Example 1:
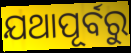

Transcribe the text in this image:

ଯଥାପୂର୍ବରୁ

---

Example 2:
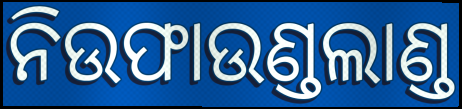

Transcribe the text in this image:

ନିଉଫାଉଣ୍ଡଲାଣ୍ଡ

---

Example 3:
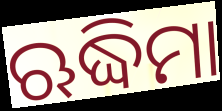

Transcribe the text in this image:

ଋଦ୍ଧିମା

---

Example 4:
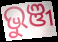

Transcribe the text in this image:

ଭୁଞ୍ଜ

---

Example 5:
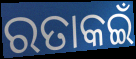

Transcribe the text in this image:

ରତାକଇଁ